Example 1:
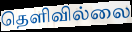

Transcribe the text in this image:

தெளிவில்லை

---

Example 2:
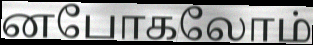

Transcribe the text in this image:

னபோகலோம்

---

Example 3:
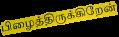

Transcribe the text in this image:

பிழைத்திருக்கிறேன்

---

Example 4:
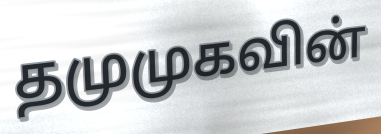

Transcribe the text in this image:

தமுமுகவின்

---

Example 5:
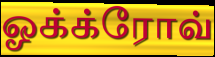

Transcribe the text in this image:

ஓக்க்ரோவ்